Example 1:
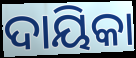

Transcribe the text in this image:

ଦାୟିକା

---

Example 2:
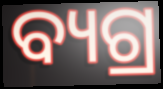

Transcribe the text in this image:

ବ୍ୟଗ୍ର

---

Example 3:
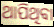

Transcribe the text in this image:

ଥାପିଥିବା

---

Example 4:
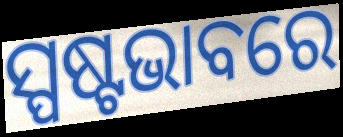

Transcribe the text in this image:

ସ୍ପଷ୍ଟଭାବରେ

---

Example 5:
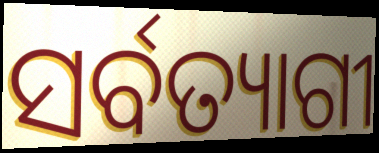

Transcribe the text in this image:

ସର୍ବତ୍ୟାଗୀ